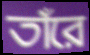
তাঁরে